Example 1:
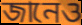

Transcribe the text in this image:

জানেও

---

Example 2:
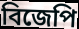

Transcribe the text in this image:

বিজেপি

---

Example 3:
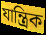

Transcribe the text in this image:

যান্ত্ৰিক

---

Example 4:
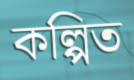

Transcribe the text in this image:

কল্পিত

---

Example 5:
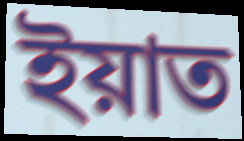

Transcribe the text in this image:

ইয়াত